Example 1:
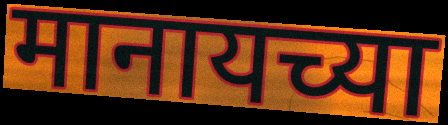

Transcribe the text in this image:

मानायच्या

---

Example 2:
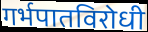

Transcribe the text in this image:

गर्भपातविरोधी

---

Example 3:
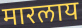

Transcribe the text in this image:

मारलाय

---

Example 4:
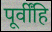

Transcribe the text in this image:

पूर्वींहि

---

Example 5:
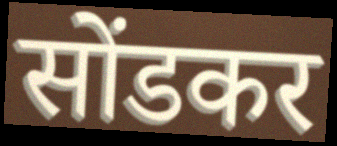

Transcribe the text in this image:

सोंडकर